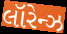
લૉરેન્ઝ